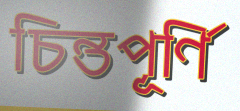
চিন্তপূৰ্ণি